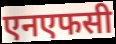
एनएफसी